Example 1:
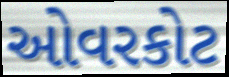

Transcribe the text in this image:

ઓવરકોટ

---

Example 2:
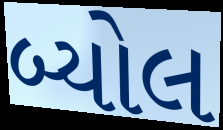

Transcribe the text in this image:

બ્યોલ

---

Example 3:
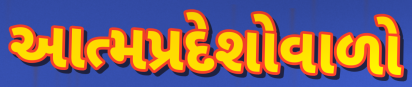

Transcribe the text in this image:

આત્મપ્રદેશોવાળો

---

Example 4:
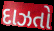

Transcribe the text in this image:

દાઝતો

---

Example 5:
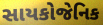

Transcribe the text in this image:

સાયકોજેનિક